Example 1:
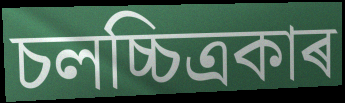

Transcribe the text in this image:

চলচ্চিত্ৰকাৰ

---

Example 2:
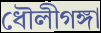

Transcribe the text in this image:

ধৌলীগঙ্গা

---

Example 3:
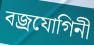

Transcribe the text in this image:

বজ্ৰযোগিনী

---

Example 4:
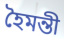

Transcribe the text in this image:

হৈমন্তী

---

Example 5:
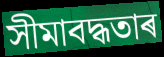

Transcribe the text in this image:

সীমাবদ্ধতাৰ